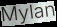
Mylan